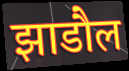
झाडौल